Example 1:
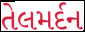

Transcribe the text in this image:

તેલમર્દન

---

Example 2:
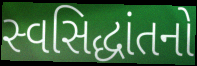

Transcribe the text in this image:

સ્વસિદ્ધાંતનો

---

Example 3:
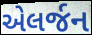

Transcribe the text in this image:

એલર્જન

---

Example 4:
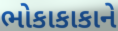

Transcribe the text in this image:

ભોકાકાકાને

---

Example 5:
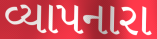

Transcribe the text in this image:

વ્યાપનારા